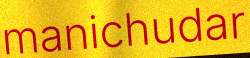
manichudar